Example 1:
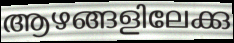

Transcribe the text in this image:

ആഴങ്ങളിലേക്കു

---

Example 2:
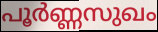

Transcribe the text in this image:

പൂർണ്ണസുഖം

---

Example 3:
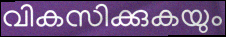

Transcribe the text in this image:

വികസിക്കുകയും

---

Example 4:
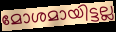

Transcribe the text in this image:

മോശമായിട്ടല്ല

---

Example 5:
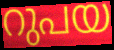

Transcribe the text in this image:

റുപയ